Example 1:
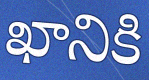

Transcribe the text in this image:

ఖానికి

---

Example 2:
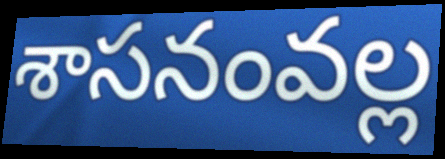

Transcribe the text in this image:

శాసనంవల్ల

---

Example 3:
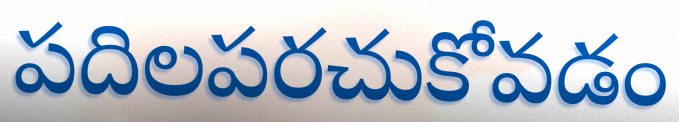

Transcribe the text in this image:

పదిలపరచుకోవడం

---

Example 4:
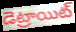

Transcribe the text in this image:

డెట్రాయిట్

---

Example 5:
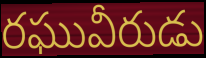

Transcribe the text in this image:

రఘువీరుడు